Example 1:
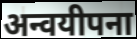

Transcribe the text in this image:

अन्वयीपना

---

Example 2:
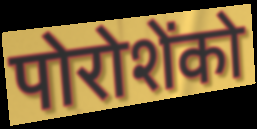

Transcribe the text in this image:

पोरोशेंको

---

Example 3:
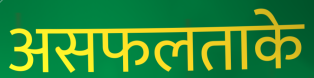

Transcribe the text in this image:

असफलताके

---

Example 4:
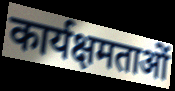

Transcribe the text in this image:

कार्यक्षमताओं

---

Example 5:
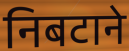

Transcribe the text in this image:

निबटाने